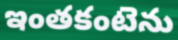
ఇంతకంటెను